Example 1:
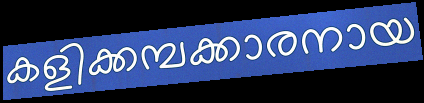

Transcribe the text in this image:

കളിക്കമ്പക്കാരനായ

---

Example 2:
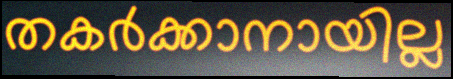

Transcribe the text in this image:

തകർക്കാനായില്ല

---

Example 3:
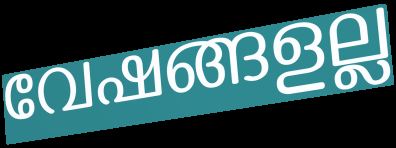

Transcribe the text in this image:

വേഷങ്ങളല്ല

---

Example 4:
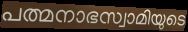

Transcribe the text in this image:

പത്മനാഭസ്വാമിയുടെ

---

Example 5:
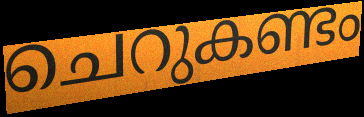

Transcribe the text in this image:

ചെറുകണ്ടം